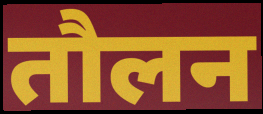
तौलन